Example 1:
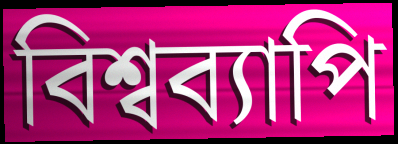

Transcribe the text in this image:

বিশ্বব্যাপি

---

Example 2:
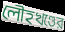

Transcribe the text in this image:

লৌহখণ্ডের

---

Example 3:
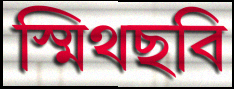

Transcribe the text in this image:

স্মিথছবি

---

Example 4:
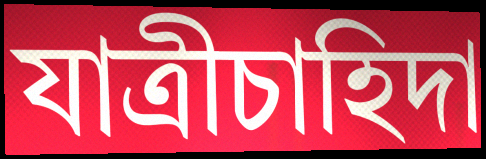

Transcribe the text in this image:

যাত্রীচাহিদা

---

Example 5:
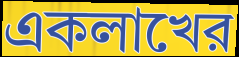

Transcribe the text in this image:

একলাখের